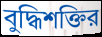
বুদ্ধিশক্তির